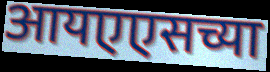
आयएएसच्या